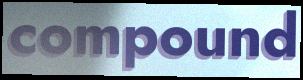
compound